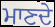
ਮਾਣਦੇ